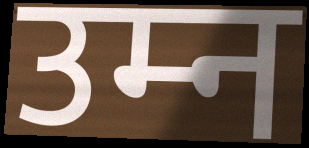
उम्न